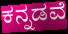
ಕನ್ನಡವೆ